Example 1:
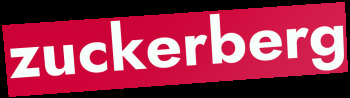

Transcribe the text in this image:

zuckerberg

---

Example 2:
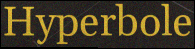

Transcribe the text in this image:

Hyperbole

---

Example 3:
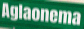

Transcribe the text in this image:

Aglaonema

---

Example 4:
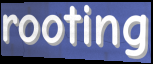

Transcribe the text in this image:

rooting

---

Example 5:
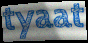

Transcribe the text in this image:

tyaat